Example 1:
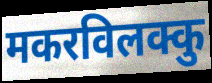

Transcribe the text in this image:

मकरविलक्कु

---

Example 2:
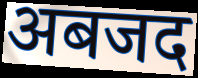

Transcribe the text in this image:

अबजद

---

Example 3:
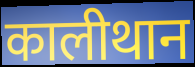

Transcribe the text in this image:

कालीथान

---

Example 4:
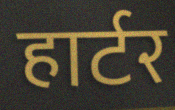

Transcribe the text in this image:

हार्टर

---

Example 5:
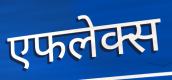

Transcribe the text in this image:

एफलेक्स